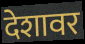
देशावर